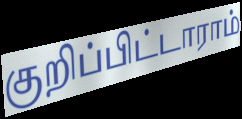
குறிப்பிட்டாராம்